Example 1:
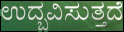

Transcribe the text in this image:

ಉದ್ಬವಿಸುತ್ತದೆ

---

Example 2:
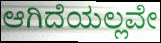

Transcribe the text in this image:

ಆಗಿದೆಯಲ್ಲವೇ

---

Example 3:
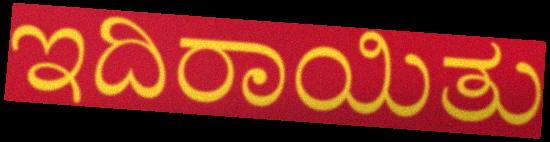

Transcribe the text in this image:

ಇದಿರಾಯಿತು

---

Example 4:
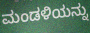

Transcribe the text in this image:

ಮಂಡಳಿಯನ್ನು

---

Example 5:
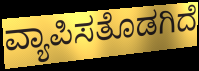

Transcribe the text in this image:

ವ್ಯಾಪಿಸತೊಡಗಿದೆ